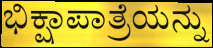
ಭಿಕ್ಷಾಪಾತ್ರೆಯನ್ನು